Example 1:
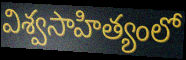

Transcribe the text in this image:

విశ్వసాహిత్యంలో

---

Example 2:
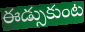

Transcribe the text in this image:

ఈడ్సుకుంట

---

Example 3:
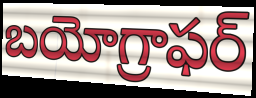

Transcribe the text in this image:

బయోగ్రాఫర్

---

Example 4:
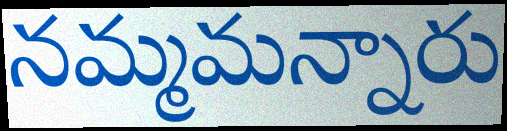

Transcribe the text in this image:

నమ్మమన్నారు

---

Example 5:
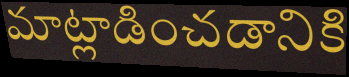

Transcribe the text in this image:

మాట్లాడించడానికి